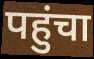
पहुंचा